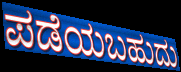
ಪಡೆಯಬಹುದು